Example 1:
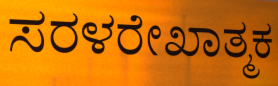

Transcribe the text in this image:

ಸರಳರೇಖಾತ್ಮಕ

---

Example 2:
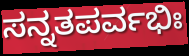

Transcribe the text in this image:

ಸನ್ನತಪರ್ವಭಿಃ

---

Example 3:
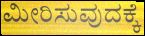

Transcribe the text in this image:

ಮೀರಿಸುವುದಕ್ಕೆ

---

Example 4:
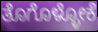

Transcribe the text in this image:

ತೊಗೊಳ್ಳೋಕೆ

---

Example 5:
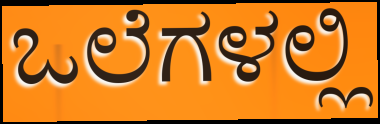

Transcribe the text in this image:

ಒಲೆಗಳಲ್ಲಿ